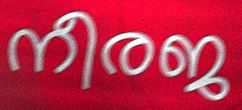
നീരജ